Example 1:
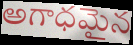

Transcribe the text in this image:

అగాధమైన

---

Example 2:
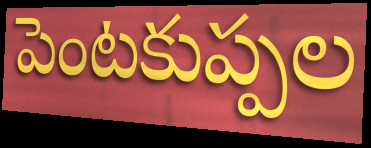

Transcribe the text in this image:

పెంటకుప్పల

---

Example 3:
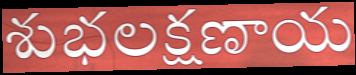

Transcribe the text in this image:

శుభలక్షణాయ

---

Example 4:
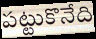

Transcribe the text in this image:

పట్టుకొనేది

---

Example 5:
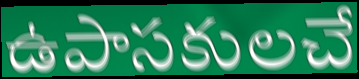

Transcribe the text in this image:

ఉపాసకులచే